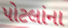
પોટલાંના